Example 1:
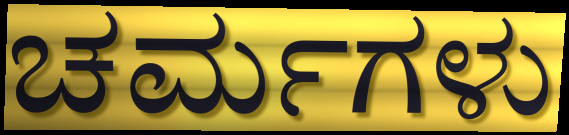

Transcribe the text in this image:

ಚರ್ಮಗಳು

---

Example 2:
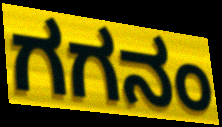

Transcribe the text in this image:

ಗಗನಂ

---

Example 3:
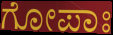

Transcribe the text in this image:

ಗೋಪಾಃ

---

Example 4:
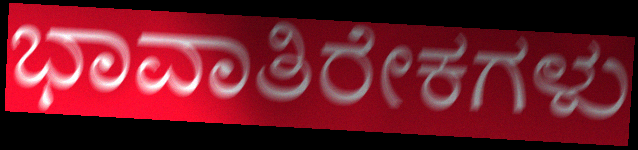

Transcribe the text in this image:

ಭಾವಾತಿರೇಕಗಳು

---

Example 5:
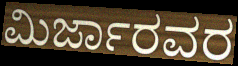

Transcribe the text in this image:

ಮಿರ್ಜಾರವರ